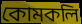
কোমকলি